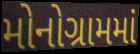
મોનોગ્રામમાં